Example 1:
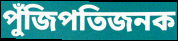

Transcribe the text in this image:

পুঁজিপতিজনক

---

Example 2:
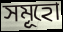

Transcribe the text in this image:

সমূহো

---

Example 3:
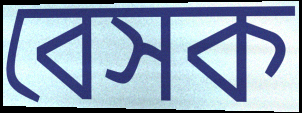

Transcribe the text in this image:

বেসক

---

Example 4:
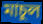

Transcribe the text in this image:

মাচুল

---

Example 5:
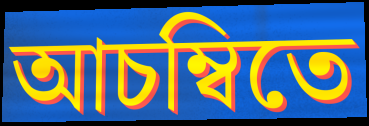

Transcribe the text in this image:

আচম্বিতে